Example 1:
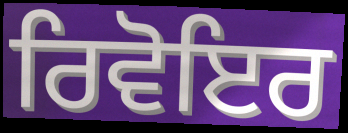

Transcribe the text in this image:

ਰਿਵੋਇਰ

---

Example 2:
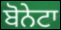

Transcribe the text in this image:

ਬੋਨੇਟਾ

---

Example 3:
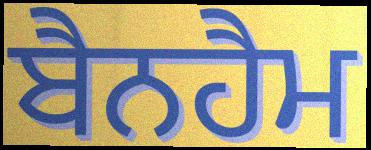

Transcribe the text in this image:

ਬੈਨਹੈਮ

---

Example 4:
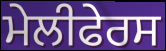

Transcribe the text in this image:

ਮੇਲੀਫੇਰਸ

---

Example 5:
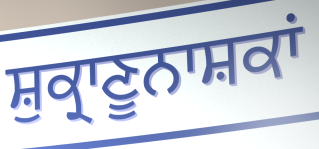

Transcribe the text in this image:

ਸ਼ੁਕ੍ਰਾਣੂਨਾਸ਼ਕਾਂ